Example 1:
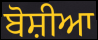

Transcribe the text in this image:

ਬੋਸ਼ੀਆ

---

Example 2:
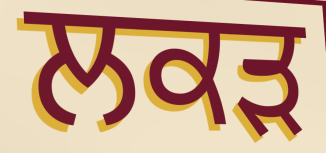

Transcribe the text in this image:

ਲਕੜ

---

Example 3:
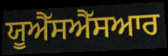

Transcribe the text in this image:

ਯੂਐੱਸਐੱਸਆਰ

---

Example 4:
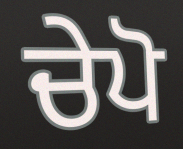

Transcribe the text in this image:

ਚੇਪੋ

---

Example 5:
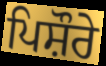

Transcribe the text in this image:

ਪਿਸ਼ੌਰੇ